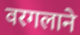
वरगलाने